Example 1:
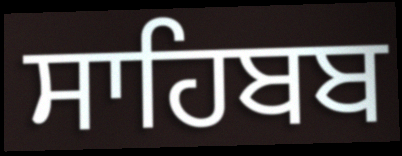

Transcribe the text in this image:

ਸਾਹਿਬਬ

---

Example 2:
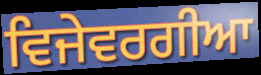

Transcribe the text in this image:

ਵਿਜੇਵਰਗੀਆ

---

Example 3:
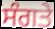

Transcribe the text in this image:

ਸੰਗਤੇ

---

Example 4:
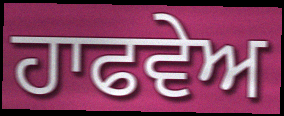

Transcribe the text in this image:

ਹਾਫਵੇਅ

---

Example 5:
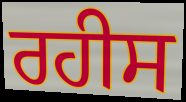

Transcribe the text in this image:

ਰਹੀਸ